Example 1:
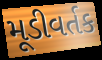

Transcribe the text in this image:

મૂડીવર્તક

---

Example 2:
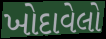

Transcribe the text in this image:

ખોદાવેલો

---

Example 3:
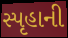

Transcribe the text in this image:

સ્પૃહાની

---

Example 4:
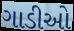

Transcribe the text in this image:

ગાડીઓ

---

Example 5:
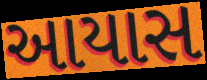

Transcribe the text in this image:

આયાસ